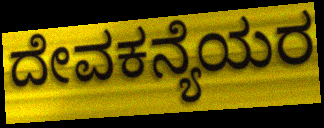
ದೇವಕನ್ಯೆಯರ